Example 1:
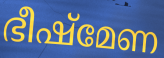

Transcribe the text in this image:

ഭീഷ്മേണ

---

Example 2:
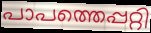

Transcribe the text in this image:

പാപത്തെപ്പറ്റി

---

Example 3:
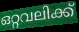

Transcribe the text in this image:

ഒറ്റവലിക്ക്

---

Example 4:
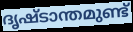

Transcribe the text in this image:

ദൃഷ്ടാന്തമുണ്ട്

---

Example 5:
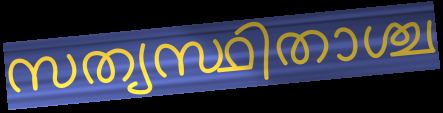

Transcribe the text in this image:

സത്യസ്ഥിതാശ്ച